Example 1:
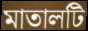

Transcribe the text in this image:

মাতালটি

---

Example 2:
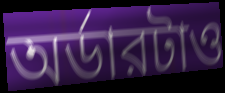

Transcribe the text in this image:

অর্ডারটাও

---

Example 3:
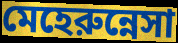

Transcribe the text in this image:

মেহেরুন্নেসা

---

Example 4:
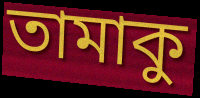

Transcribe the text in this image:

তামাকু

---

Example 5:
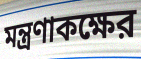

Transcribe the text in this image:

মন্ত্রণাকক্ষের